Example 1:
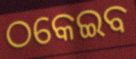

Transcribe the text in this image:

ଠକେଇବ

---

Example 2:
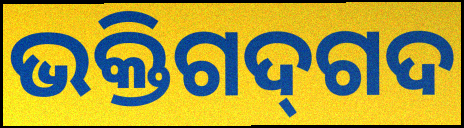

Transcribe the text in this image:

ଭକ୍ତିଗଦ୍‌ଗଦ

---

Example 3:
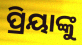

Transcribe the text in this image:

ପ୍ରିୟାଙ୍କୁ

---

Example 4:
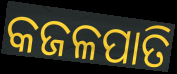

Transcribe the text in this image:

କଜଳପାତି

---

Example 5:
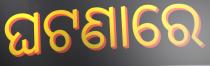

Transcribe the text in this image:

ଘଟଣାରେ